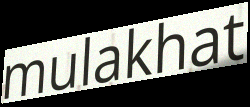
mulakhat